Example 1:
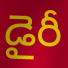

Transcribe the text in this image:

డైరీ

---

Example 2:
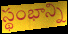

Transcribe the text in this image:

స్థంభాన్ని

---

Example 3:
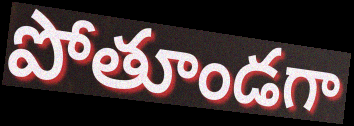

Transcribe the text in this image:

పోతూండగా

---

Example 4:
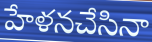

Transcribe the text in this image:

హేళనచేసినా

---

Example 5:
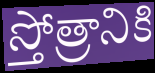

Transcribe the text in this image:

స్తోత్రానికి